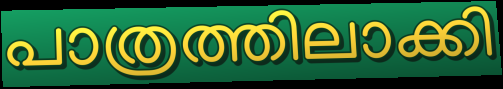
പാത്രത്തിലാക്കി